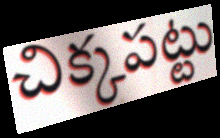
చిక్కపట్టు